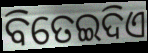
ବିତେଇଦିଏ